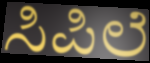
ಸಿಪಿಲೆ